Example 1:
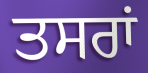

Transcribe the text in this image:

ਤਸਰਾਂ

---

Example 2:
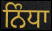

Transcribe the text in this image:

ਨਿੰਧਾ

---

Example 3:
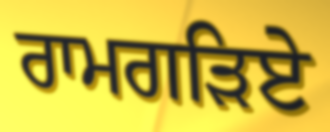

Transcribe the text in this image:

ਰਾਮਗੜਿਏ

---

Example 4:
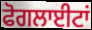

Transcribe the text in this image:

ਫੋਗਲਾਈਟਾਂ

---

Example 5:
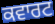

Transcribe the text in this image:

ਕਵਾਰਟ